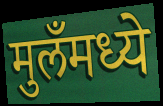
मुलँमध्ये